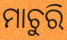
ମାଚୁରି